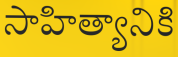
సాహిత్యానికి